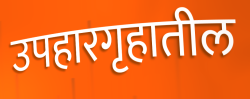
उपहारगृहातील